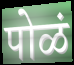
पोळं